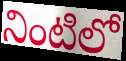
నింటిలో